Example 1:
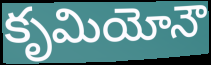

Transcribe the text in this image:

కృమియోనౌ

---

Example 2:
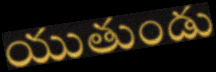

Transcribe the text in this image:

యుతుండు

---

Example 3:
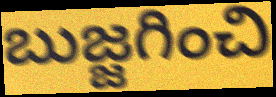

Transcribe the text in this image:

బుజ్జగించి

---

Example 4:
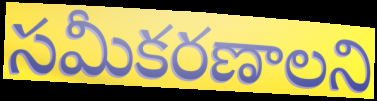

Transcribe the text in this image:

సమీకరణాలని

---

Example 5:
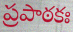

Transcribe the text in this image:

ప్రపాఠకః